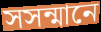
সসন্মানে